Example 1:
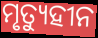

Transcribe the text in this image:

ମୃତ୍ୟୁହୀନ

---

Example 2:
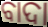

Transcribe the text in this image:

ବାଦା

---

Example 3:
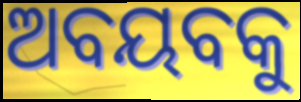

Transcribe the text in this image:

ଅବୟବକୁ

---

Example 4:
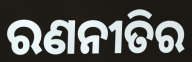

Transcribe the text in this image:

ରଣନୀତିର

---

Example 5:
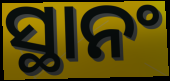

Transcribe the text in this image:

ସ୍ଥାନଂ